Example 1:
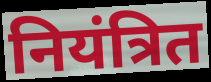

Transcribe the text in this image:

नियंत्रित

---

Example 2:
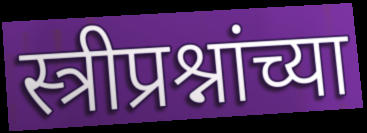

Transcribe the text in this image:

स्त्रीप्रश्नांच्या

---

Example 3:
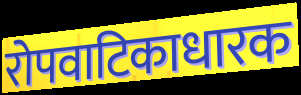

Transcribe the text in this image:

रोपवाटिकाधारक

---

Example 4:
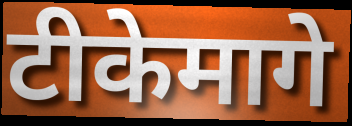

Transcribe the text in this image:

टीकेमागे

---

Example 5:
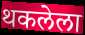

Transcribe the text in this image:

थकलेला